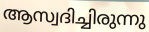
ആസ്വദിച്ചിരുന്നു